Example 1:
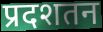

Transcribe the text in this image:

प्रदशतन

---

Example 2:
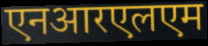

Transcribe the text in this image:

एनआरएलएम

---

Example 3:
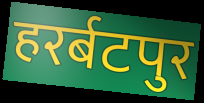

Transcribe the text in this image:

हरर्बटपुर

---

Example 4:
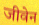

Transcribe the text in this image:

जीवेन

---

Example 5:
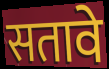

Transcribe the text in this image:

सतावे